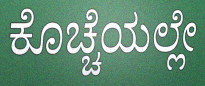
ಕೊಚ್ಚೆಯಲ್ಲೇ